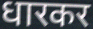
धारकर